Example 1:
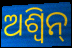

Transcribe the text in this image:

ଅଶ୍ବିନ୍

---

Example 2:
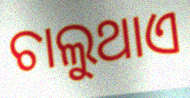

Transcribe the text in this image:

ଚାଲୁଥାଏ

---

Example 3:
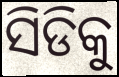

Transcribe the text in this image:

ସିଡିକୁ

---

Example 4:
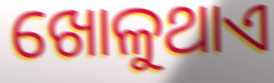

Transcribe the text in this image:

ଖୋଳୁଥାଏ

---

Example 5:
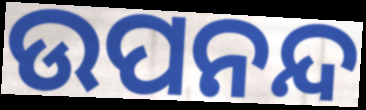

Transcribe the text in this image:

ଉପନନ୍ଦ